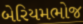
બેરિયમભોજ